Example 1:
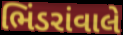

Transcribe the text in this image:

ભિંડરાંવાલે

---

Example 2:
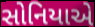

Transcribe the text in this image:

સોનિયાએ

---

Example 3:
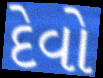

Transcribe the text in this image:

દેવો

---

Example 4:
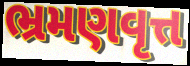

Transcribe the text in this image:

ભ્રમણવૃત્ત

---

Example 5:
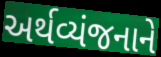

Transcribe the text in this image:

અર્થવ્યંજનાને